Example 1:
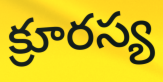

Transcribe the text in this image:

క్రూరస్య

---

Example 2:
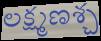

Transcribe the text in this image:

లక్ష్మణశ్చ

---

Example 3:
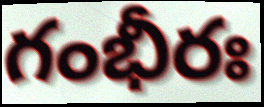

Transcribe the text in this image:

గంభీరః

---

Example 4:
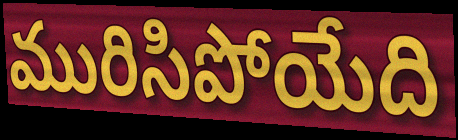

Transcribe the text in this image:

మురిసిపోయేది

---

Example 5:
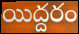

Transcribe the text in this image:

యిద్దరం